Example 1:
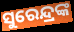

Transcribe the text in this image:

ସୁରେନ୍ଦ୍ରଙ୍କ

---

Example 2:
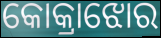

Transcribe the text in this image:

କୋକ୍ରାଝୋର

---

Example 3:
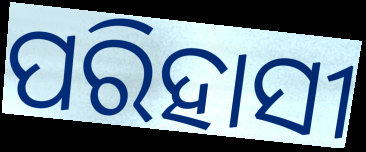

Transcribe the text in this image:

ପରିହାସୀ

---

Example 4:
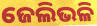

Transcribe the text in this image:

ଜେଲିଭଳି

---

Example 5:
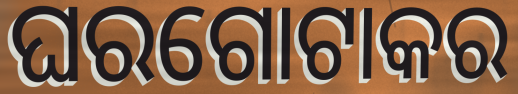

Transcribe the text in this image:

ଘରଗୋଟାକର